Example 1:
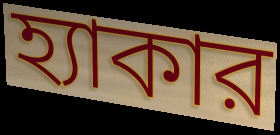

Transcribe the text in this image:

হ্যাকার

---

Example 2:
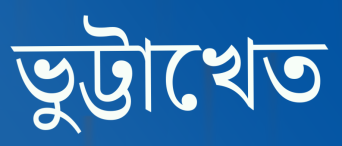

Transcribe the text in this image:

ভুট্টাখেত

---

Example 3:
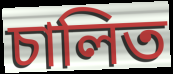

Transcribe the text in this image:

চালিত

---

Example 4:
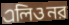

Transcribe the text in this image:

এলিওনর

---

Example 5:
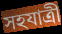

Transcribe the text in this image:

সহযাত্রী